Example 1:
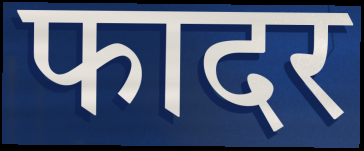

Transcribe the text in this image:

फादर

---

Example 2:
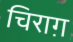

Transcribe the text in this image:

चिराग़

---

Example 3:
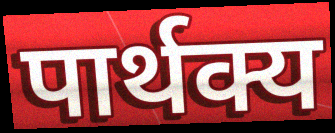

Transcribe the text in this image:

पार्थक्य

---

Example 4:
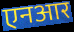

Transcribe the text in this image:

एनआर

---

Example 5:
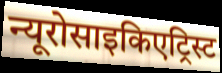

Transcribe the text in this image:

न्यूरोसाइकिएट्रिस्ट